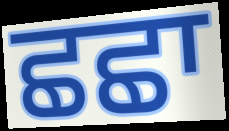
ਛਛਾ